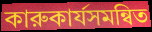
কারুকার্যসমন্বিত